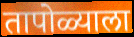
तापोळ्याला